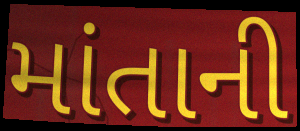
માંતાની